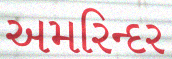
અમરિન્દર